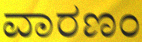
ವಾರಣಂ